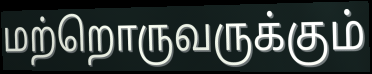
மற்றொருவருக்கும்